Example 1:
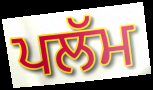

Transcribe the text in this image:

ਪਲੱਮ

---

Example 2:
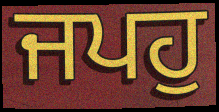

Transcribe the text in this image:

ਜਪਹੁ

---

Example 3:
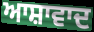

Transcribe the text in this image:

ਆਸ਼ਾਵਾਦ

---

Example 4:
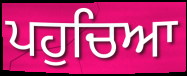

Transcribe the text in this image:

ਪਹੁਚਿਆ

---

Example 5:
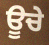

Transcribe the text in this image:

ਊਚੇ